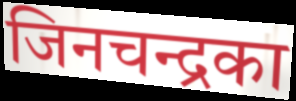
जिनचन्द्रका